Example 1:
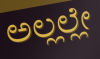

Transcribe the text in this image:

ಅಲ್ಲಲ್ಲೇ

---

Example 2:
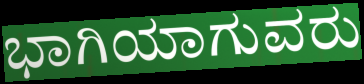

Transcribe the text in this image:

ಭಾಗಿಯಾಗುವರು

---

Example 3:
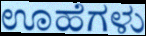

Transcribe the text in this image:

ಊಹೆಗಳು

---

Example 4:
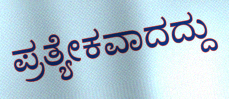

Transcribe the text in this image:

ಪ್ರತ್ಯೇಕವಾದದ್ದು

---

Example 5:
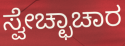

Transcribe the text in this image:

ಸ್ವೇಚ್ಛಾಚಾರ